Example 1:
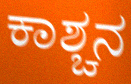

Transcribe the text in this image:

ಕಾಶ್ಚನ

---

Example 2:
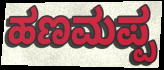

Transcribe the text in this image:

ಹಣಮಪ್ಪ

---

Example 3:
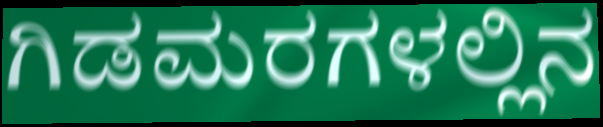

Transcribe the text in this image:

ಗಿಡಮರಗಳಲ್ಲಿನ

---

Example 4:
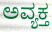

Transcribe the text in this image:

ಅವ್ಯಕ್ತ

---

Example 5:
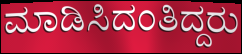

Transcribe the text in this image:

ಮಾಡಿಸಿದಂತಿದ್ದರು